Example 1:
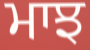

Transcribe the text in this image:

ਮਾਝ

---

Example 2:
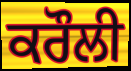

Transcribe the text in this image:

ਕਰੌਲੀ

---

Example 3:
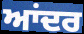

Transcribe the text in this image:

ਆਂਦਰ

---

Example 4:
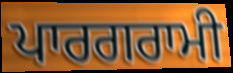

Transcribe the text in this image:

ਪਾਰਗਰਾਮੀ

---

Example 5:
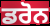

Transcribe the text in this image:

ਡਰੋਨ